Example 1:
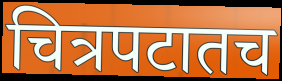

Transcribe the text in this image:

चित्रपटातच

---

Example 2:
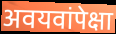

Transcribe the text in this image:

अवयवांपेक्षा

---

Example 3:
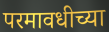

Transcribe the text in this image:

परमावधीच्या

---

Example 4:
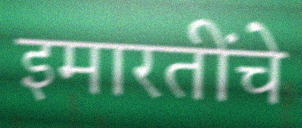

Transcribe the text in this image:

इमारतींचे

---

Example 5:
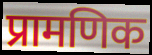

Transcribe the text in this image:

प्रामणिक